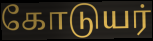
கோடுயர்